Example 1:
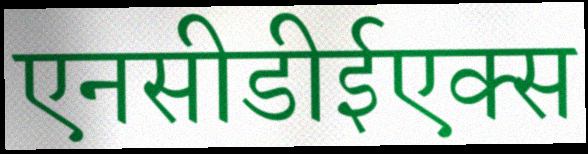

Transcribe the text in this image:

एनसीडीईएक्स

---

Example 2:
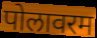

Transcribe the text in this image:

पोलावरम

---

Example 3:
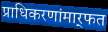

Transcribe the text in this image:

प्राधिकरणांमार्फत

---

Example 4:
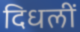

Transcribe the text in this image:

दिधलीं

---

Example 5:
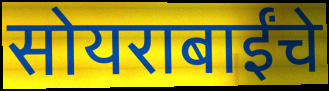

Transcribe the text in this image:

सोयराबाईंचे